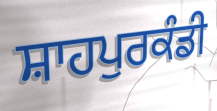
ਸ਼ਾਹਪੁਰਕੰਡੀ